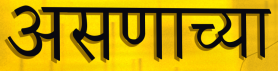
असणाच्या